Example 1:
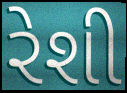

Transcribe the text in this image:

રેશી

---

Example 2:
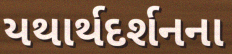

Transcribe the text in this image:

યથાર્થદર્શનના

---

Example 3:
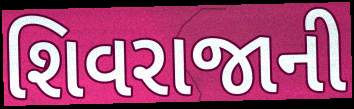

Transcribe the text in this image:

શિવરાજાની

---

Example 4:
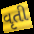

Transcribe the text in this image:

વૃતી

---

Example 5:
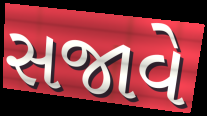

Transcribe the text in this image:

સજાવે